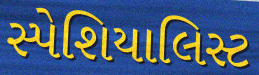
સ્પેશિયાલિસ્ટ